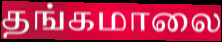
தங்கமாலை